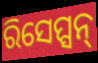
ରିସେପ୍ସନ୍